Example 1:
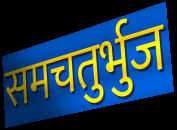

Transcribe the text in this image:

समचतुर्भुज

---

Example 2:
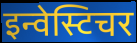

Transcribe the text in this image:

इन्वेस्टिचर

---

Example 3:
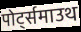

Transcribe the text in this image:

पोर्ट्समाउथ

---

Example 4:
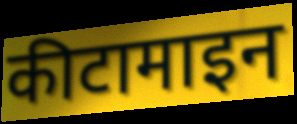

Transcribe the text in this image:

कीटामाइन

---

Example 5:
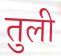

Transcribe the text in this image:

तुली